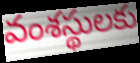
వంశస్థులకు